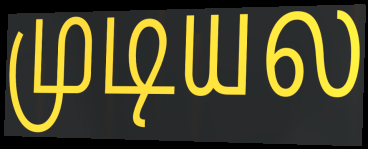
முடியல